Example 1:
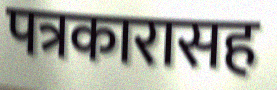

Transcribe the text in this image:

पत्रकारासह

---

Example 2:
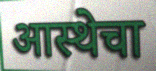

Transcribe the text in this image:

आस्थेचा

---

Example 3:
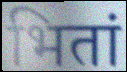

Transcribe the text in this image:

भितां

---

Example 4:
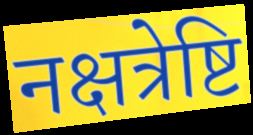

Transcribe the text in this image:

नक्षत्रेष्टि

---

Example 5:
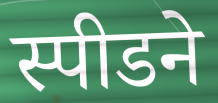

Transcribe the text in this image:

स्पीडने